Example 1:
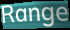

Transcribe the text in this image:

Range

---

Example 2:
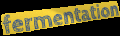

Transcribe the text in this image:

fermentation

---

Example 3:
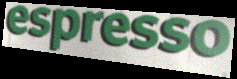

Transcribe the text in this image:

espresso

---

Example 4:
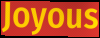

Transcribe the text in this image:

Joyous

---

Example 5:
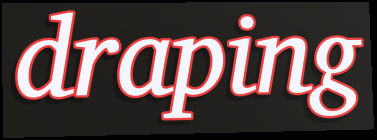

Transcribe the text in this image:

draping